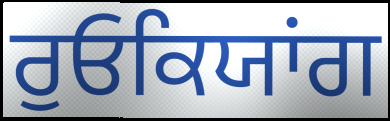
ਰੁਓਕਿਯਾਂਗ